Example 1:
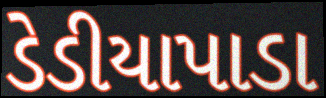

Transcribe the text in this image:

ડેડીયાપાડા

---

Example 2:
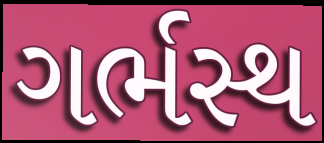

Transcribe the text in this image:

ગર્ભસ્થ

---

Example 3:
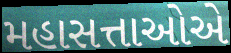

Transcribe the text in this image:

મહાસત્તાઓએ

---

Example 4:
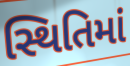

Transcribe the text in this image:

સ્થિતિમાં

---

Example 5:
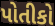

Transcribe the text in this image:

પોતીકો